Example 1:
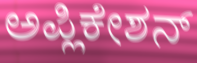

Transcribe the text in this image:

ಅಪ್ಲಿಕೇಶನ್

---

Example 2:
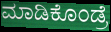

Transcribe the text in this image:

ಮಾಡಿಕೊಂಡ್ರೆ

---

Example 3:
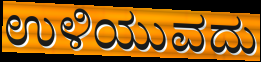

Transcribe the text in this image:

ಉಳಿಯುವದು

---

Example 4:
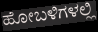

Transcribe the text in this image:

ಹೋಬಳಿಗಳಲ್ಲಿ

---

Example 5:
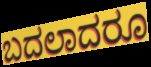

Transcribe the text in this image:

ಬದಲಾದರೂ